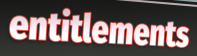
entitlements